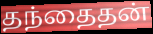
தந்தைதன்